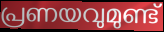
പ്രണയവുമുണ്ട്